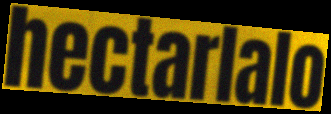
hectarlalo